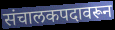
संचालकपदावरून